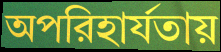
অপরিহার্যতায়